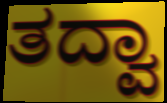
ತದ್ವಾ